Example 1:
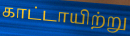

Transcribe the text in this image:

காட்டாயிற்று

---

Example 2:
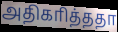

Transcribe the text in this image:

அதிகரித்ததா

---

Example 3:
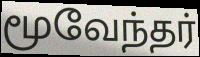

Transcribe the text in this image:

மூவேந்தர்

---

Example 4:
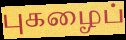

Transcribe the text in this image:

புகழைப்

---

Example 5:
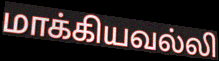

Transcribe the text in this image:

மாக்கியவல்லி